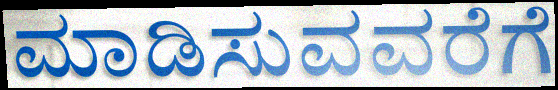
ಮಾಡಿಸುವವರೆಗೆ